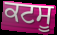
ਕਟਸੂ